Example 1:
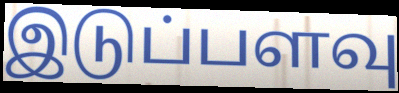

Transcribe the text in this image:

இடுப்பளவு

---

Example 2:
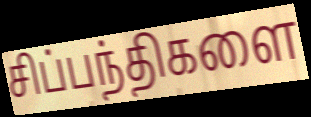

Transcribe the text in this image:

சிப்பந்திகளை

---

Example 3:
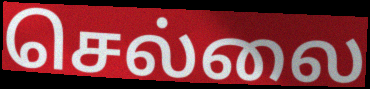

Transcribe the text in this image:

செல்லை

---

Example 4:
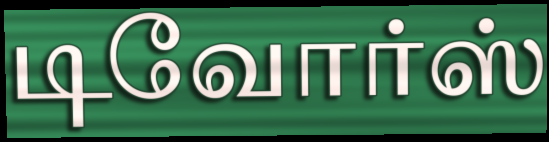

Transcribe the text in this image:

டிவோர்ஸ்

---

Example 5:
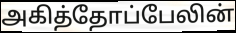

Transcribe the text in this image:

அகித்தோப்பேலின்